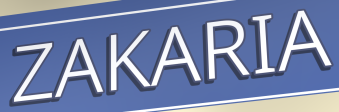
ZAKARIA